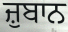
ਜ਼ੁਬਾਨ